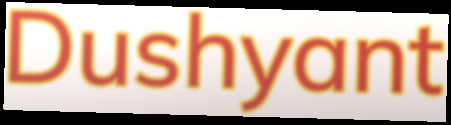
Dushyant